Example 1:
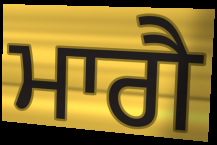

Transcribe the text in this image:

ਮਾਗੈ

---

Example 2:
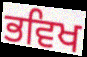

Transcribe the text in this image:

ਭਵਿਖ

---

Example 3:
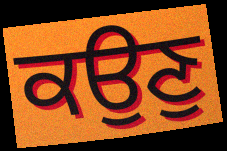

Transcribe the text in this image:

ਕਉਣੁ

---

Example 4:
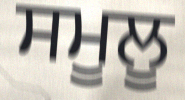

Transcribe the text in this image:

ਸਮੂਲੂ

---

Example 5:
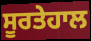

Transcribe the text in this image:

ਸੂਰਤੇਹਾਲ